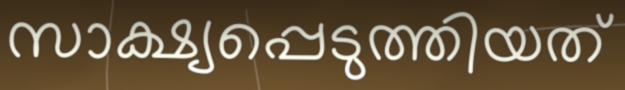
സാക്ഷ്യപ്പെടുത്തിയത്